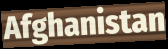
Afghanistan